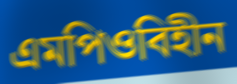
এমপিওবিহীন